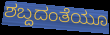
ಶಬ್ದದಂತೆಯೂ